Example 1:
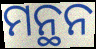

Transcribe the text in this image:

ମନ୍ଥନ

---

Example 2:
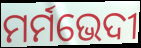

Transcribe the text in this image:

ମର୍ମଭେଦୀ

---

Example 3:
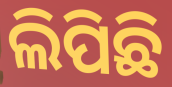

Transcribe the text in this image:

ଲିପିଛି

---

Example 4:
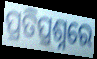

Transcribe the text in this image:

ପ୍ରତିପ୍ରଶ୍ନରେ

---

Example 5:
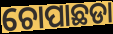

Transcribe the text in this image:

ଚୋପାଛଡା